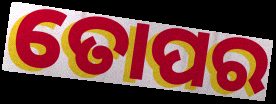
ତୋପର